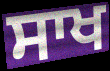
ਸਾਖ